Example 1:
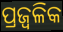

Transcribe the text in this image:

ପ୍ରଜ୍ଵଳିକ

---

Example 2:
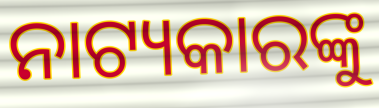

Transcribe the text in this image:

ନାଟ୍ୟକାରଙ୍କୁ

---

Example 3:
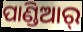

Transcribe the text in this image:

ପାଣ୍ଡିଆର୍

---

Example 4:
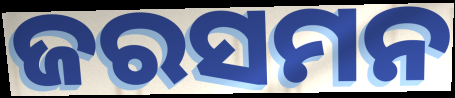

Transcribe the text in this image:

ଜରସମନ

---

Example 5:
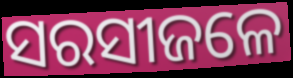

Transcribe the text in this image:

ସରସୀଜଳେ